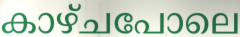
കാഴ്ചപോലെ